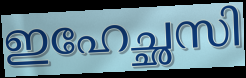
ഇഹേച്ഛസി